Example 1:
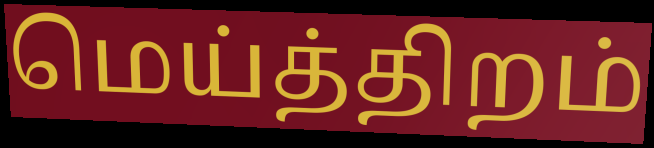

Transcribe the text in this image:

மெய்த்திறம்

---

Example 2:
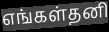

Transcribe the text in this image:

எங்கள்தனி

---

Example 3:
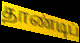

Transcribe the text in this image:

தாண்டிப்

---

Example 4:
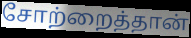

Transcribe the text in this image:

சோற்றைத்தான்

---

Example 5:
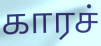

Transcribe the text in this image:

காரச்